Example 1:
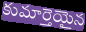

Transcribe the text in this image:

కుమార్తెయైన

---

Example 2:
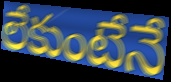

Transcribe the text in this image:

లేకుంటేనే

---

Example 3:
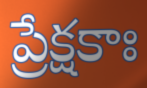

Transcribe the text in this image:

ప్రేక్షకాః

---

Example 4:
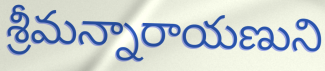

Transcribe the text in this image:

శ్రీమన్నారాయణుని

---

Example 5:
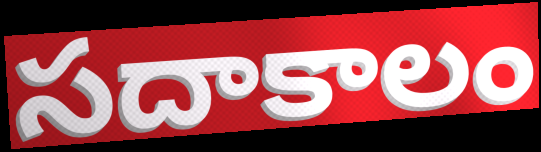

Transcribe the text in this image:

సదాకాలం